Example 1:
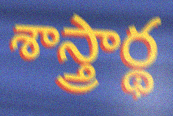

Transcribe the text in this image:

శాస్త్రార్థ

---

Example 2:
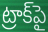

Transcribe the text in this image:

ట్రాక్‌పై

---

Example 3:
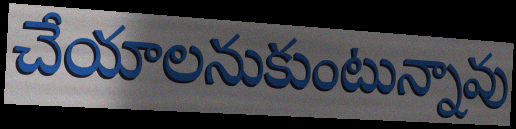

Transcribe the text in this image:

చేయాలనుకుంటున్నావు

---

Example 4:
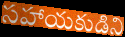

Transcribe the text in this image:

సహాయకుడిని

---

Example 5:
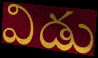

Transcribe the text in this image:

విడు